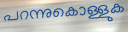
പറന്നുകൊള്ളുക